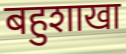
बहुशाखा